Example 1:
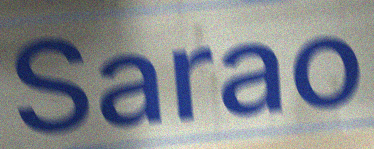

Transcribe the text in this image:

Sarao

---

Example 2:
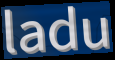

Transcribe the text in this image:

ladu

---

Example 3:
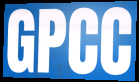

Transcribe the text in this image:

GPCC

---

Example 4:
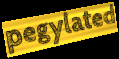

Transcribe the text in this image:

pegylated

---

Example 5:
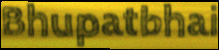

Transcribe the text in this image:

Bhupatbhai